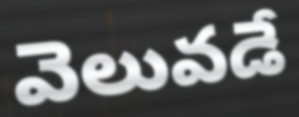
వెలువడే